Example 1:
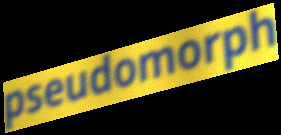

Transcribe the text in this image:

pseudomorph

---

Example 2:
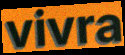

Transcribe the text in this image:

vivra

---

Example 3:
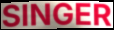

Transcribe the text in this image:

SINGER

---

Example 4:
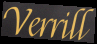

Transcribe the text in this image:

Verrill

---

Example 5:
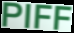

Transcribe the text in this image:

PIFF